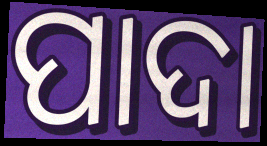
ପାଦା